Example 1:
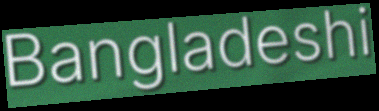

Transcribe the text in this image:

Bangladeshi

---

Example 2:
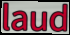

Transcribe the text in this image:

laud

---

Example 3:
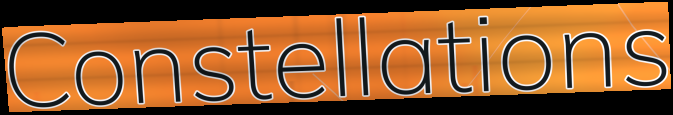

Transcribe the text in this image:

Constellations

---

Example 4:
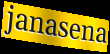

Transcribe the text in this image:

janasena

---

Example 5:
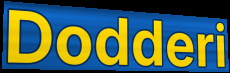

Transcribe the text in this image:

Dodderi